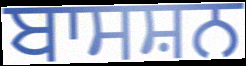
ਬਾਸਸ਼ਨ